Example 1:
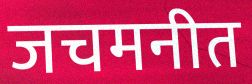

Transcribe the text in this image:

जचमनीत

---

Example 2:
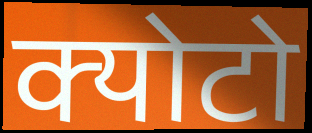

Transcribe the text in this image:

क्‍योटो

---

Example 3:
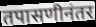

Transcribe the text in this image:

तपासणीनंतर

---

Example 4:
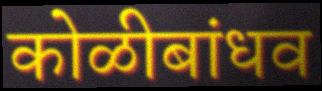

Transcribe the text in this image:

कोळीबांधव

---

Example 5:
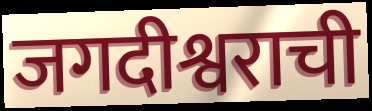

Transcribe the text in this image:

जगदीश्वराची